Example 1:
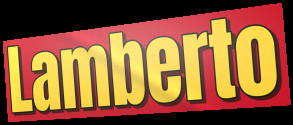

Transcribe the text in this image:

Lamberto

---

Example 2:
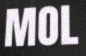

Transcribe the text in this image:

MOL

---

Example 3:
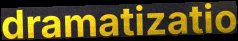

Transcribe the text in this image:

dramatizatio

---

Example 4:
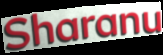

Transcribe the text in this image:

Sharanu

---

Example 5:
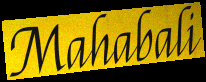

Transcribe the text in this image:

Mahabali